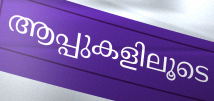
ആപ്പുകളിലൂടെ